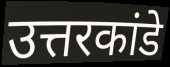
उत्तरकांडे